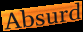
Absurd